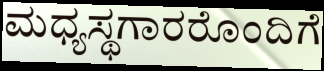
ಮಧ್ಯಸ್ಥಗಾರರೊಂದಿಗೆ